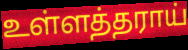
உள்ளத்தராய்